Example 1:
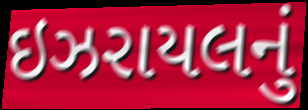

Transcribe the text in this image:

ઇઝરાયલનું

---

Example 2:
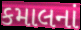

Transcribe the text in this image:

કમાલનાં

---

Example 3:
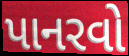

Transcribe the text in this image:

પાનરવો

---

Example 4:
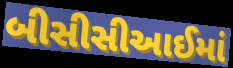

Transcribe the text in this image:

બીસીસીઆઈમાં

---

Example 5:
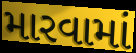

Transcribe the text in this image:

મારવામાં